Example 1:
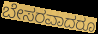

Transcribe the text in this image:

ಬೇಸರವಾದರೂ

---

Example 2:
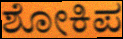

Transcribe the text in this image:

ಶೋಕಿಪ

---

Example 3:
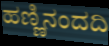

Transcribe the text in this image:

ಹಣ್ಣಿನಂದದಿ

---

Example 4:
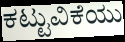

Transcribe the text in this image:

ಕಟ್ಟುವಿಕೆಯು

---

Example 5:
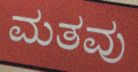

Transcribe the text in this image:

ಮತವು